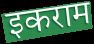
इकराम